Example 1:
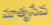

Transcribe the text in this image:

మాతృసేవ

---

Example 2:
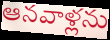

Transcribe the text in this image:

ఆనవాళ్లను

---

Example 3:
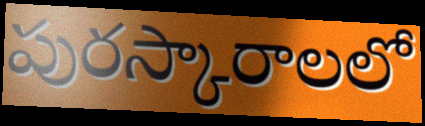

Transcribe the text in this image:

పురస్కారాలలో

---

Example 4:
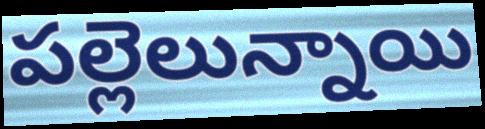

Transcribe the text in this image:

పల్లెలున్నాయి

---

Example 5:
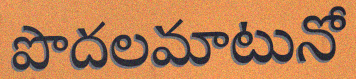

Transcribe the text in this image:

పొదలమాటునో